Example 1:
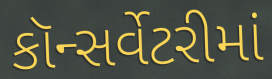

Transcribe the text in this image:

કૉન્સર્વેટરીમાં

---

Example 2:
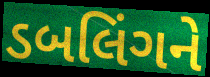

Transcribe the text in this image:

ડબલિંગને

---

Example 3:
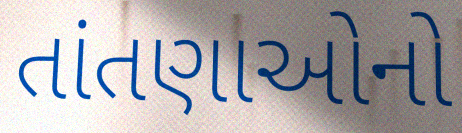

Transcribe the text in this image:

તાંતણાઓનો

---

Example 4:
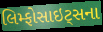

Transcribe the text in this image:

લિમ્ફોસાઇટ્સના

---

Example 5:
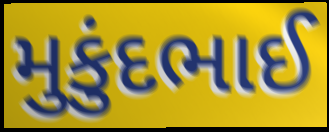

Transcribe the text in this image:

મુકુંદભાઈ